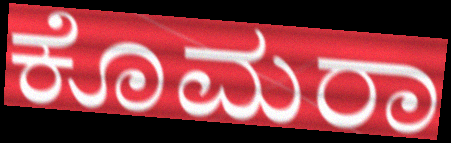
ಕೊಮರಾ